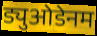
ड्युओडेनम